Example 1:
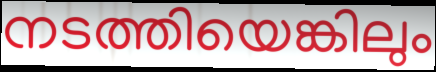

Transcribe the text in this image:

നടത്തിയെങ്കിലും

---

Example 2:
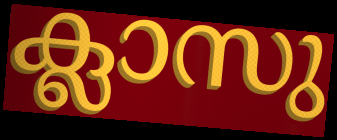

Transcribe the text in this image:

ക്ലാസു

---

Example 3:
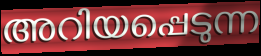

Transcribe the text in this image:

അറിയപ്പെടുന്ന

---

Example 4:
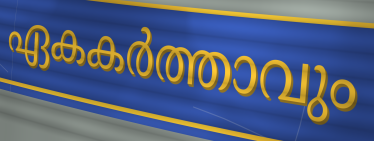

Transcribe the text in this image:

ഏകകർത്താവും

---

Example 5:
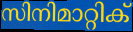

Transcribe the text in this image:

സിനിമാറ്റിക്